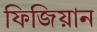
ফিজিয়ান